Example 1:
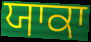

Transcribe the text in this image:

ਯਾਕਾ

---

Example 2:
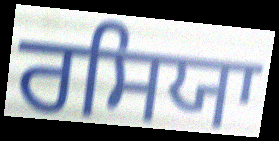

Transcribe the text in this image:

ਰਸਿਯਾ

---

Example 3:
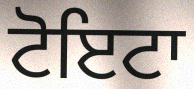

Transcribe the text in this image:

ਟੋਇਟਾ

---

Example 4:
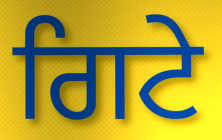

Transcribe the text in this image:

ਗਿਟੇ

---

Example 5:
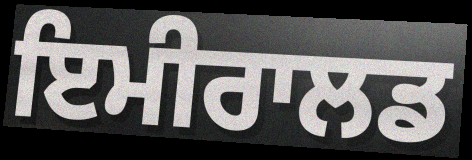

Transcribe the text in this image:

ਇਮੀਰਾਲਡ